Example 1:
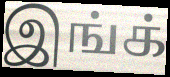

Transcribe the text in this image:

இங்க்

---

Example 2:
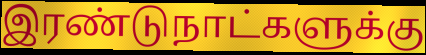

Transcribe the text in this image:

இரண்டுநாட்களுக்கு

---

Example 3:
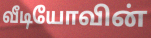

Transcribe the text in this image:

வீடியோவின்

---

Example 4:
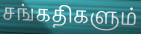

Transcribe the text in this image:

சங்கதிகளும்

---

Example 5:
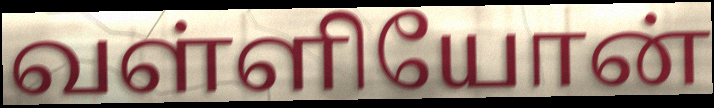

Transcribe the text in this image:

வள்ளியோன்